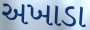
અખાડા